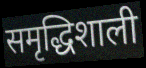
समृद्धिशाली